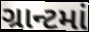
ગ્રાન્ટમાં